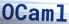
OCaml